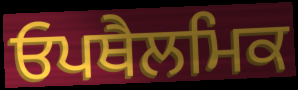
ਓਪਥੈਲਮਿਕ